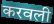
करवली